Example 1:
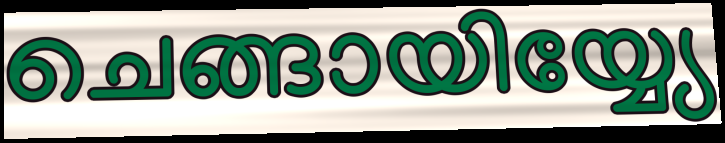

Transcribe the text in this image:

ചെങ്ങായിയ്യ്യേ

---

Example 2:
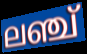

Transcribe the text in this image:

ലഞ്ച്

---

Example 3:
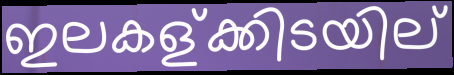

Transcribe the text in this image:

ഇലകള്ക്കിടയില്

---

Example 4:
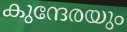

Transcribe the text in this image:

കുന്ദേരയും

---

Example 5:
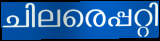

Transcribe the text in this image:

ചിലരെപ്പറ്റി